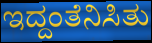
ಇದ್ದಂತೆನಿಸಿತು